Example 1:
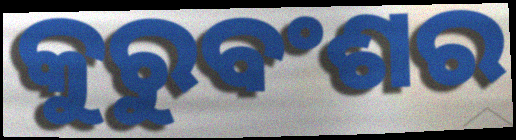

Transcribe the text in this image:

କୁରୁବଂଶର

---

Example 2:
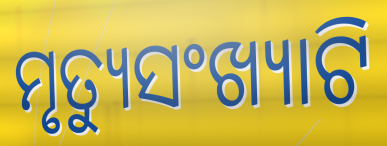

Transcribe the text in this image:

ମୃତ୍ୟୁସଂଖ୍ୟାଟି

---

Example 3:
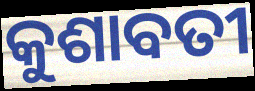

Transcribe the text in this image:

କୁଶାବତୀ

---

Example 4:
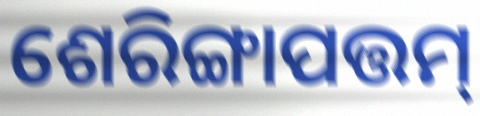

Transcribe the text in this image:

ଶେରିଙ୍ଗାପତ୍ତମ୍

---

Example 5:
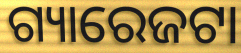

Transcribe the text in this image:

ଗ୍ୟାରେଜଟା